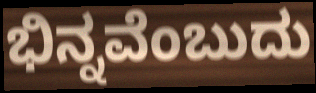
ಭಿನ್ನವೆಂಬುದು